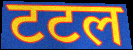
टटल